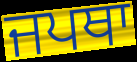
ਜਪਥਾ